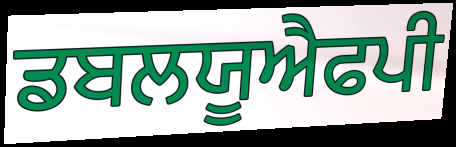
ਡਬਲਯੂਐਫਪੀ